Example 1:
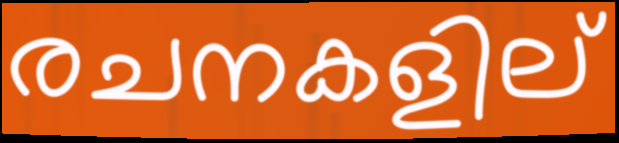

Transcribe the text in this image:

രചനകളില്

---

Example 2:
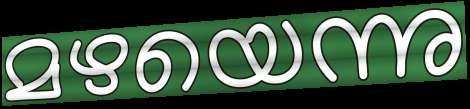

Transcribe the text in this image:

മഴയെന്നു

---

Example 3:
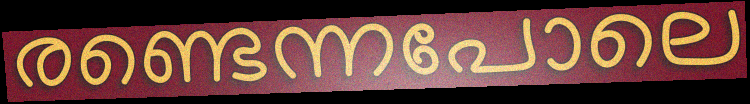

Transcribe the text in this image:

രണ്ടെന്നപോലെ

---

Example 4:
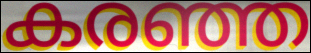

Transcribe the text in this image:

കരഞ്ഞ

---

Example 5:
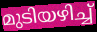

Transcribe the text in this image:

മുടിയഴിച്ച്